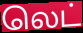
லெட்